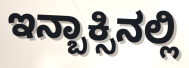
ಇನ್ಬಾಕ್ಸಿನಲ್ಲಿ